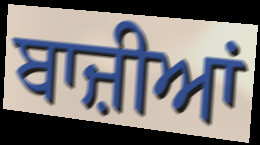
ਬਾਜ਼ੀਆਂ